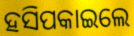
ହସିପକାଇଲେ